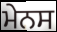
ਮੇਨਸ